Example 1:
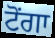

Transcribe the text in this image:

ਟੋਂਗਾ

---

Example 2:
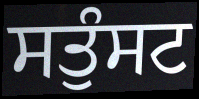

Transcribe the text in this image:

ਸਤੁੰਸਟ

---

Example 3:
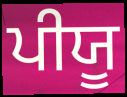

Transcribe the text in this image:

ਪੀਯੂ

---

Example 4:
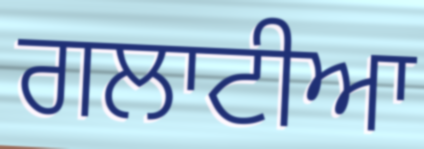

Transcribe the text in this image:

ਗਲਾਟੀਆ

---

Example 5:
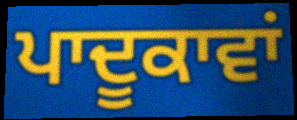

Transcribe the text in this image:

ਪਾਦੂਕਾਵਾਂ